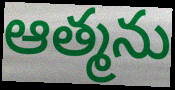
ఆత్మను